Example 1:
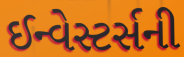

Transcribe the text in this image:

ઈન્વેસ્ટર્સની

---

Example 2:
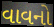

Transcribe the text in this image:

વાવનો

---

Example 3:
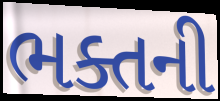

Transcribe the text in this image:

ભક્તની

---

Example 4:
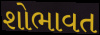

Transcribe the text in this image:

શોભાવત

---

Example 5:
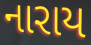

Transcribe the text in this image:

નારાય